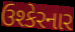
ઉશ્કેરનાર